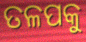
ତଳପକୁ